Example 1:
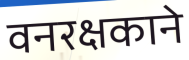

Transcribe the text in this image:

वनरक्षकाने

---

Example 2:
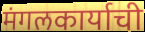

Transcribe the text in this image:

मंगलकार्याची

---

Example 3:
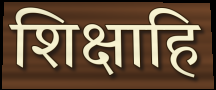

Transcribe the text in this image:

शिक्षाहि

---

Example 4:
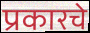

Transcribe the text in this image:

प्रकारचे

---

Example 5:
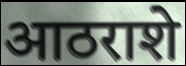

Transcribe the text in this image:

आठराशे